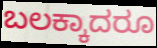
ಬಲಕ್ಕಾದರೂ